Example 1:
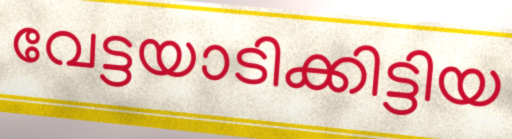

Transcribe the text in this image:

വേട്ടയാടിക്കിട്ടിയ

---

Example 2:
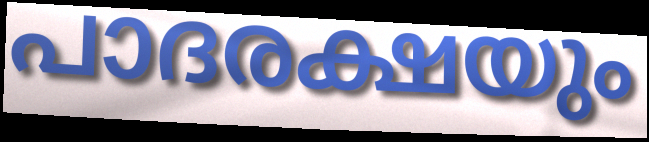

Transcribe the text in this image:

പാദരക്ഷയും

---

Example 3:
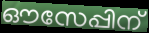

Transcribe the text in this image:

ഔസേപ്പിന്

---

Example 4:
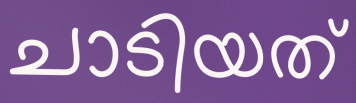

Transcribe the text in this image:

ചാടിയത്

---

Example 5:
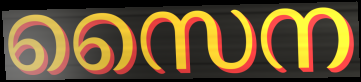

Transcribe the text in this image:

സൈന